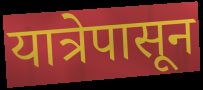
यात्रेपासून